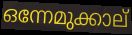
ഒന്നേമുക്കാല്